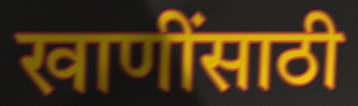
खाणींसाठी